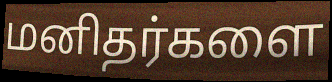
மனிதர்களை